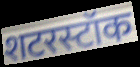
शटरस्‍टॉक